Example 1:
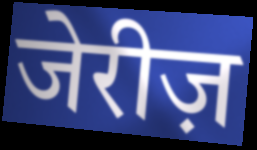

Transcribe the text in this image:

जेरीज़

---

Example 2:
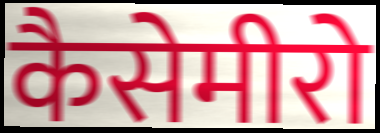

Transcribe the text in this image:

कैसेमीरो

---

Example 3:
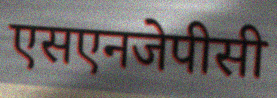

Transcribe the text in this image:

एसएनजेपीसी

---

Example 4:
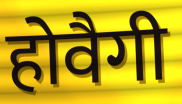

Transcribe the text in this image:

होवैगी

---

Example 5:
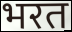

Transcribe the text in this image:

भरत